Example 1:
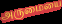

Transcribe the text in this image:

அருமையை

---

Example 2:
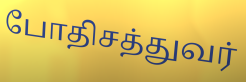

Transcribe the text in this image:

போதிசத்துவர்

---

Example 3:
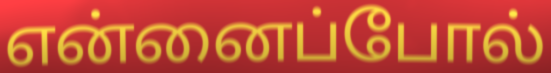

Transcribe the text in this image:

என்னைப்போல்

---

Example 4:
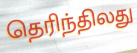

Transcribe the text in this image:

தெரிந்திலது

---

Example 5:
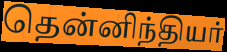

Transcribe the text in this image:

தென்னிந்தியர்